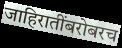
जाहिरातींबरोबरच